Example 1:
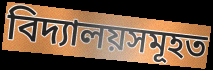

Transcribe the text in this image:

বিদ্যালয়সমূহত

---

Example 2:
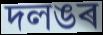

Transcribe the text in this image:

দলঙৰ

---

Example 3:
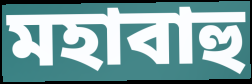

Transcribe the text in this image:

মহাবাহু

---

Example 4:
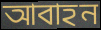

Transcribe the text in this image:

আবাহন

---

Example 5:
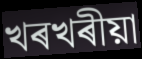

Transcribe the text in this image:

খৰখৰীয়া